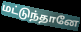
மட்டுந்தானே